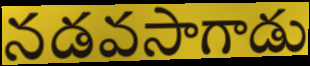
నడవసాగాడు